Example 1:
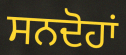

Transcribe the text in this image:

ਸਨਦੋਹਾਂ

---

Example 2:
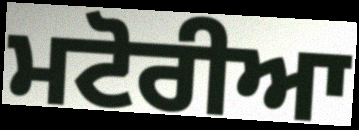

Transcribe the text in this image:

ਮਟੋਰੀਆ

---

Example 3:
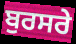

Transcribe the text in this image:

ਬੁਰਸਰੇ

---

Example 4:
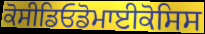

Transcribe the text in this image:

ਕੋਸੀਡਿਓਡੋਮਾਈਕੋਸਿਸ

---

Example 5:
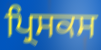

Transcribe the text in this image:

ਪ੍ਰਿਸਕਸ